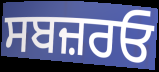
ਸਬਜ਼ਰਓ